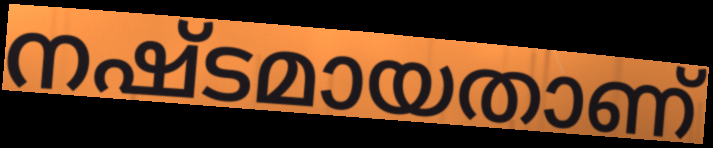
നഷ്ടമായതാണ്